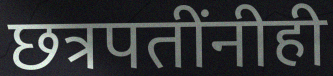
छत्रपतींनीही